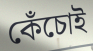
কেঁচোই